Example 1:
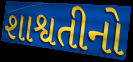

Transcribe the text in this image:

શાશ્વતીનો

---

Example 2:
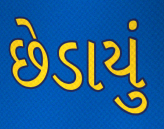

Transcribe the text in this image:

છેડાયું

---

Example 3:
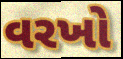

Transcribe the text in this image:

વરખો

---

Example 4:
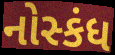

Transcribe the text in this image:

નોસ્કંધ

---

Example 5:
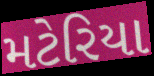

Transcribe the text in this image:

મટેરિયા